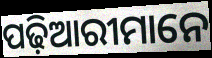
ପଢ଼ିଆରୀମାନେ